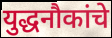
युद्धनौकांचे